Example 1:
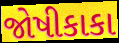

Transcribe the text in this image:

જોષીકાકા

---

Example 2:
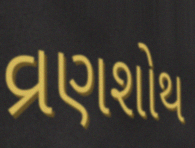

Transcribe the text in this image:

વ્રણશોથ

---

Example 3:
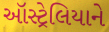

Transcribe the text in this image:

ઑસ્ટ્રેલિયાને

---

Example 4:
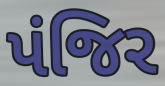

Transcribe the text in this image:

પંજિર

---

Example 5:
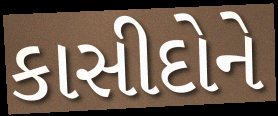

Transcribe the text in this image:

કાસીદોને